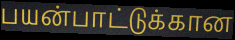
பயன்பாட்டுக்கான